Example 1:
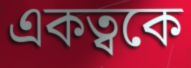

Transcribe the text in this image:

একত্বকে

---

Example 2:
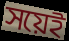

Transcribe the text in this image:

সয়েই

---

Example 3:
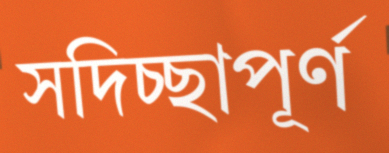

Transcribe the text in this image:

সদিচ্ছাপূর্ণ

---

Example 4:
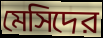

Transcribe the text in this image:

মেসিদের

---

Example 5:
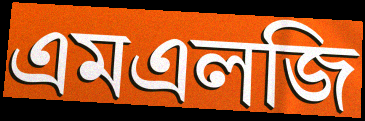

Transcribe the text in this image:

এমএলজি